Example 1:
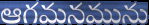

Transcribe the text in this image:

ఆగమనమును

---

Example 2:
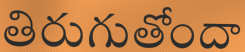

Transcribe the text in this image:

తిరుగుతోందా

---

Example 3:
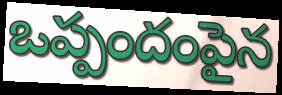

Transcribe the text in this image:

ఒప్పందంపైన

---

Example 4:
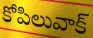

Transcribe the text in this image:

కోపిలువాక్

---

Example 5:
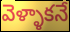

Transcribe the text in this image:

వెళ్ళాకనే